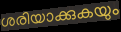
ശരിയാക്കുകയും